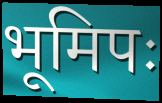
भूमिपः